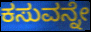
ಕಸುವನ್ನೇ